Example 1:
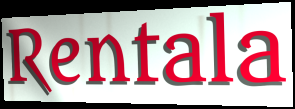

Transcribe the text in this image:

Rentala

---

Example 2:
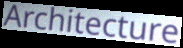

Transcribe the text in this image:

Architecture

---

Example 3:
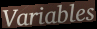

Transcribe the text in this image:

Variables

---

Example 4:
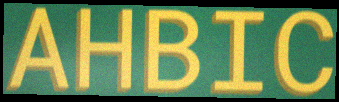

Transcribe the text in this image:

AHBIC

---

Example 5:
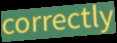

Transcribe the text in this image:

correctly